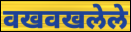
वखवखलेले